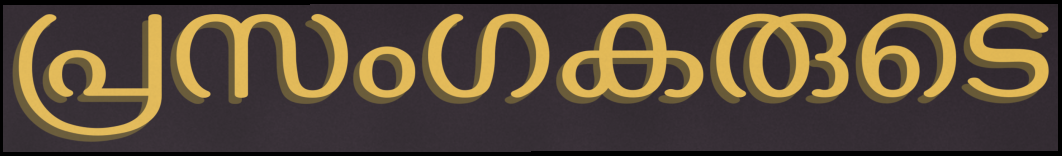
പ്രസംഗകരുടെ